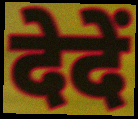
देदें